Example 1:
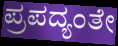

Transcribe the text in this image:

ಪ್ರಪದ್ಯಂತೇ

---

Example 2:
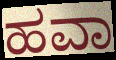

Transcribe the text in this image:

ಹವಾ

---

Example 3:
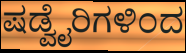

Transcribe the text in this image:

ಷಡ್ವೈರಿಗಳಿಂದ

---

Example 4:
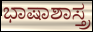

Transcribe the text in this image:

ಭಾಷಾಶಾಸ್ತ್ರ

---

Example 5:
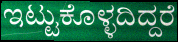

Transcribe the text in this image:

ಇಟ್ಟುಕೊಳ್ಳದಿದ್ದರೆ